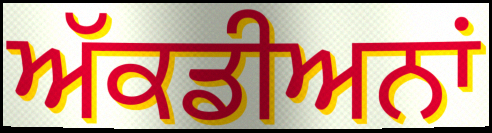
ਅੱਕਡੀਅਨਾਂ